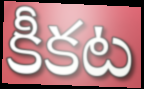
కీకట